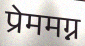
प्रेममग्न